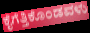
ಕೈಗೆತ್ತಿಕೊಂಡವಳು